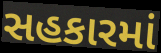
સહકારમાં